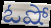
ఓషో